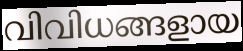
വിവിധങ്ങളായ